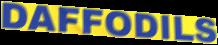
DAFFODILS